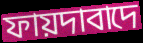
ফায়দাবাদে